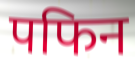
पफिन